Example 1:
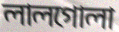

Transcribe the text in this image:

লালগোলা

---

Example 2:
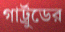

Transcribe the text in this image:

গার্ট্রুডের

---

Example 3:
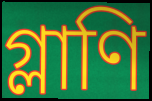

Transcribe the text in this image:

গ্লাণি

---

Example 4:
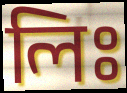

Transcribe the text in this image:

লিঃ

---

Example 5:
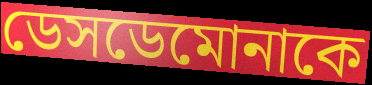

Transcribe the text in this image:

ডেসডেমোনাকে